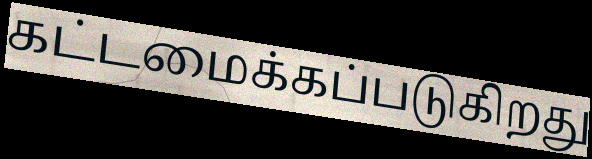
கட்டமைக்கப்படுகிறது